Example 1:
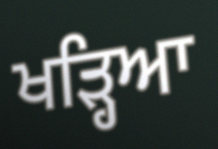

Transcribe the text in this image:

ਖੜ੍ਹਿਆ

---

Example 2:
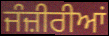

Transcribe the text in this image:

ਜੰਜ਼ੀਰੀਆਂ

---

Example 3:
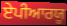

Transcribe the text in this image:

ਏਪੀਆਰਯੂ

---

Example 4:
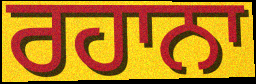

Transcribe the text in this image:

ਰਹਾਨਾ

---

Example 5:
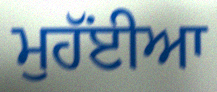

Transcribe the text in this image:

ਮੁਹੱਂਈਆ